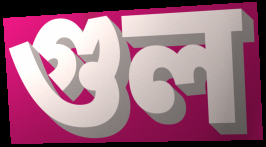
গুল